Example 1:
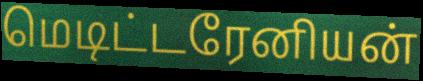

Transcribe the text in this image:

மெடிட்டரேனியன்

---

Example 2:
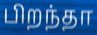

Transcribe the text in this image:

பிறந்தா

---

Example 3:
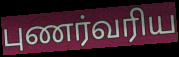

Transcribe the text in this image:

புணர்வரிய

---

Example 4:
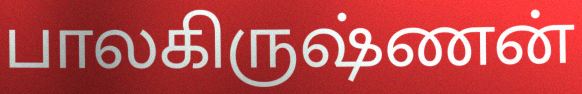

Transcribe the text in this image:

பாலகிருஷ்ணன்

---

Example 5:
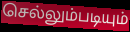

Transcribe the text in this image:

செல்லும்படியும்